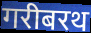
गरीबरथ